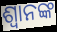
ଶ୍ବାନଙ୍କ